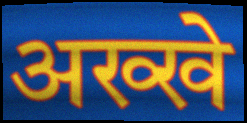
अख्खे